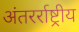
अंतरर्राष्ट्रीय